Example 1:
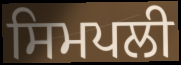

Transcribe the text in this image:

ਸਿਮਪਲੀ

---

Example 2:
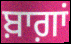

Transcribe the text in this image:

ਬ਼ਾਗ਼ਾਂ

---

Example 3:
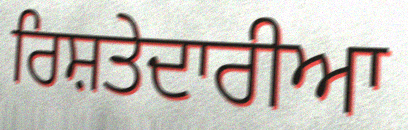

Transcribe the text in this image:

ਰਿਸ਼ਤੇਦਾਰੀਆ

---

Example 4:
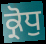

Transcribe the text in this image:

ਕ੍ਰੋਧੁ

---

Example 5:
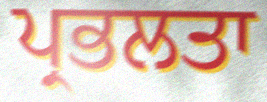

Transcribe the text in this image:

ਪ੍ਰਭਲਤਾ